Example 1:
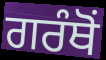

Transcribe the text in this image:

ਗਰੰਥੋਂ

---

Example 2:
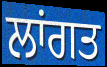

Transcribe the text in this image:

ਲਾਂਗਤ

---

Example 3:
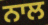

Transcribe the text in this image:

ਨਾਲ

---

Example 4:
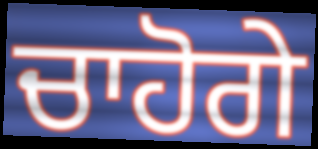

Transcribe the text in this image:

ਚਾਹੋਗੇ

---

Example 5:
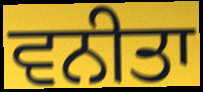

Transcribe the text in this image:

ਵਨੀਤਾ